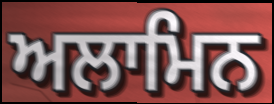
ਅਲਾਮਿਨ